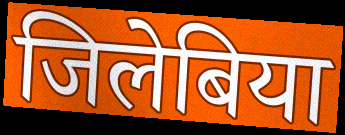
जिलेबिया